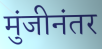
मुंजीनंतर